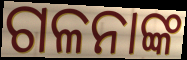
ଗଳନାଙ୍କ